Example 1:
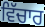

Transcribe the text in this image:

ਵਿੱਚਾਰ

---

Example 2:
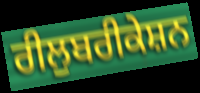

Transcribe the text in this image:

ਰੀਲੁਬਰੀਕੇਸ਼ਨ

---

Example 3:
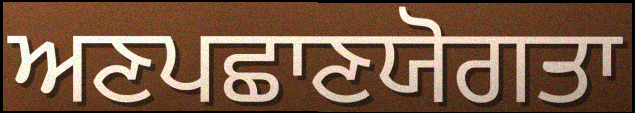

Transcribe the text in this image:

ਅਣਪਛਾਣਯੋਗਤਾ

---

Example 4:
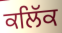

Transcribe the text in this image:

ਕਲਿੱਕ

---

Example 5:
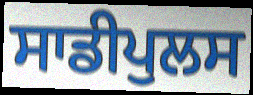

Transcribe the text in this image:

ਸਾਡੀਪੁਲਸ